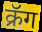
क्रॅग